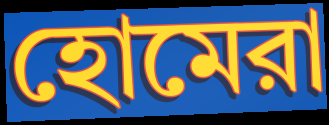
হোমেরা